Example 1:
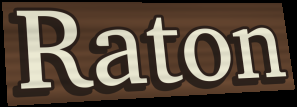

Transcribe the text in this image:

Raton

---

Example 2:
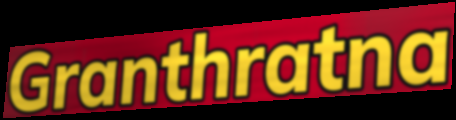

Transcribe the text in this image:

Granthratna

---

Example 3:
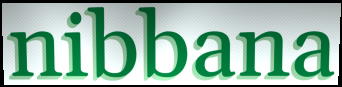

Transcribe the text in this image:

nibbana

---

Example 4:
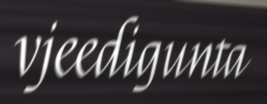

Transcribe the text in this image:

vjeedigunta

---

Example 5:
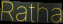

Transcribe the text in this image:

Ratha